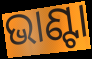
ଭାଣ୍ଟା